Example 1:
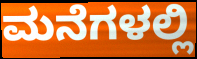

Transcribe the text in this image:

ಮನೆಗಳಲ್ಲಿ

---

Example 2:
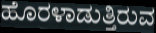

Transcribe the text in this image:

ಹೊರಳಾಡುತ್ತಿರುವ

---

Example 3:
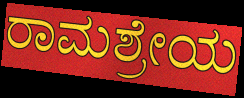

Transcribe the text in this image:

ರಾಮಶ್ರೇಯ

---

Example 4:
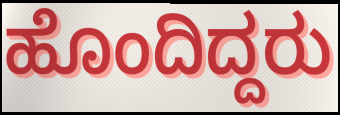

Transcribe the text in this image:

ಹೊಂದಿದ್ದರು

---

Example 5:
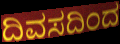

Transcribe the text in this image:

ದಿವಸದಿಂದ